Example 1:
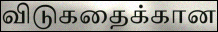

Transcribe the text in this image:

விடுகதைக்கான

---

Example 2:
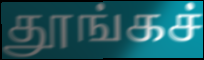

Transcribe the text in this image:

தூங்கச்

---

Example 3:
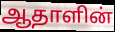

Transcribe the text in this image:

ஆதாளின்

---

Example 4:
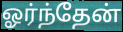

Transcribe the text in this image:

ஓர்ந்தேன்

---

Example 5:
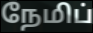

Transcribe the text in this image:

நேமிப்